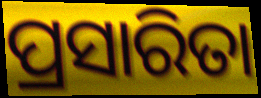
ପ୍ରସାରିତା